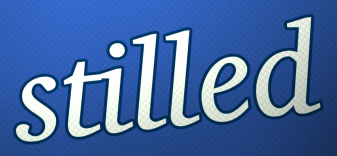
stilled